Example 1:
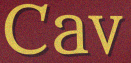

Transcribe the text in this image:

Cav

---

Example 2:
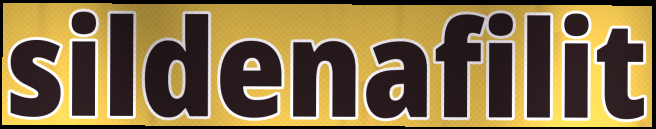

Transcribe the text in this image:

sildenafilit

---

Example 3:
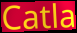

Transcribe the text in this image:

Catla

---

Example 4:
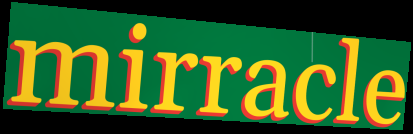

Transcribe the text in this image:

mirracle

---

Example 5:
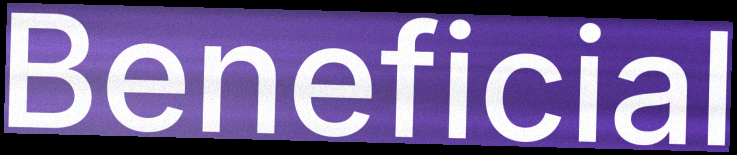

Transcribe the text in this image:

Beneficial